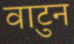
वाटुन